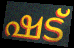
ഷട്